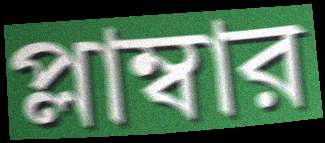
প্লাম্বার